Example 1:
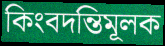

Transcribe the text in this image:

কিংবদন্তিমূলক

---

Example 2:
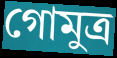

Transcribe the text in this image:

গোমুত্ৰ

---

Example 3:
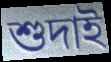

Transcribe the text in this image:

শুদাই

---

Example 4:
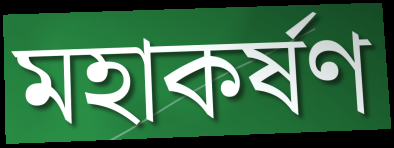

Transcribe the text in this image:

মহাকৰ্ষণ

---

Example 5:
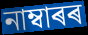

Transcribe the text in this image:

নাম্বাৰৰ